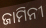
ଜାମିନୀ